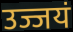
उज्जयं